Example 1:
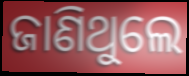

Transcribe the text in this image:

ଜାଣିଥୁଲେ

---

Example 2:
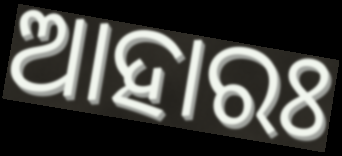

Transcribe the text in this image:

ଆହାରଃ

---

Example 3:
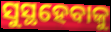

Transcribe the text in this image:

ସୁସ୍ଥହେବାକୁ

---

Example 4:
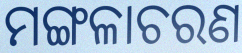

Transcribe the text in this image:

ମଙ୍ଗଳାଚରଣ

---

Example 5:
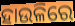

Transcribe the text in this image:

ହାଉଳିରେ